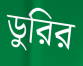
ডুরির